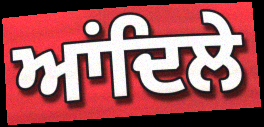
ਆਂਦਿਲੇ